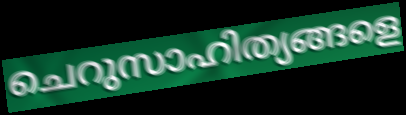
ചെറുസാഹിത്യങ്ങളെ